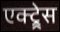
एक्ट्र्रेस